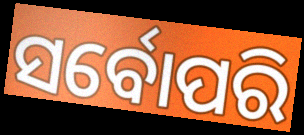
ସର୍ବୋପରି